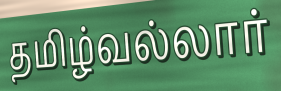
தமிழ்வல்லார்